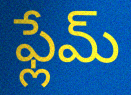
ఫ్లేమ్